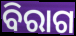
ବିରାଗ